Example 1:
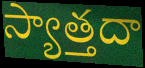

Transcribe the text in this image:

స్యాత్తదా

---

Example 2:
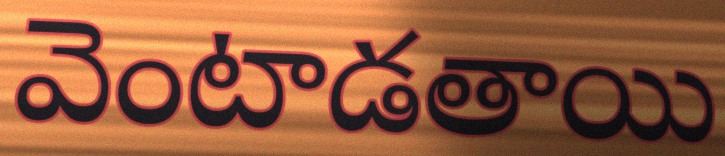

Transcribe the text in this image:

వెంటాడతాయి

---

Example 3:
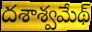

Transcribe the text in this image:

దశాశ్వమేథ్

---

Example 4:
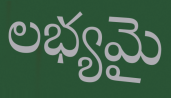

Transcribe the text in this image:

లభ్యమై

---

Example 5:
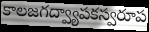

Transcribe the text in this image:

కాలజగద్వ్యాపకస్వరూప